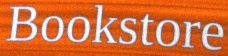
Bookstore